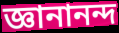
জ্ঞানানন্দ